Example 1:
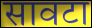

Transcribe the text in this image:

सावटा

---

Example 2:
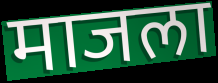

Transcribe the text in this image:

माजला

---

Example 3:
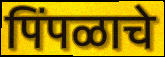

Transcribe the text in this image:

पिंपळाचे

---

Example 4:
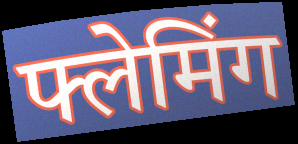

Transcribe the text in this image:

फ्लेमिंग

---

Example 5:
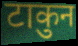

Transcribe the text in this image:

टाकुन